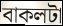
বাকলটা